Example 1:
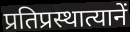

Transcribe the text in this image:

प्रतिप्रस्थात्यानें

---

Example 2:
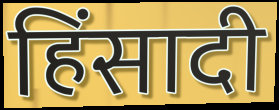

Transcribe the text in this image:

हिंसादी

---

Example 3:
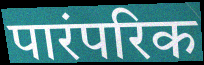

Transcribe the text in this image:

पारंपरिक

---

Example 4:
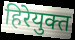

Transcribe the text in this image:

हिरेयुक्त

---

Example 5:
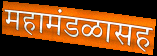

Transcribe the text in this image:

महामंडळासह